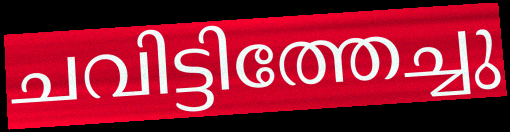
ചവിട്ടിത്തേച്ചു